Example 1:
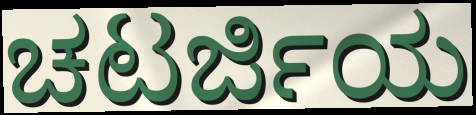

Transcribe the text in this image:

ಚಟರ್ಜಿಯ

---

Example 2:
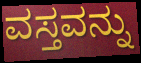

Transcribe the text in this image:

ವಸ್ತವನ್ನು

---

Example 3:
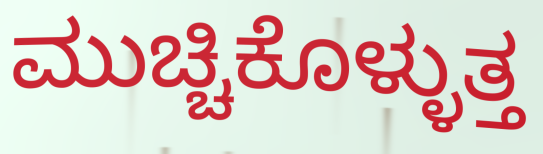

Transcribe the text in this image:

ಮುಚ್ಚಿಕೊಳ್ಳುತ್ತ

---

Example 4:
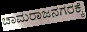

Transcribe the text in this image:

ಚಾಮರಾಜನಗರಕ್ಕೆ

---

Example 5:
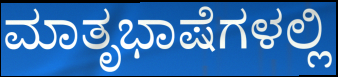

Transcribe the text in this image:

ಮಾತೃಭಾಷೆಗಳಲ್ಲಿ